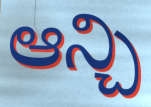
ఆన్చి